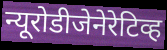
न्यूरोडीजेनेरेटिव्ह